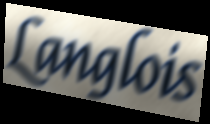
Langlois